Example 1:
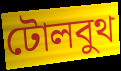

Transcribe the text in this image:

টোলবুথ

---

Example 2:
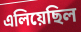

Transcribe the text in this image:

এলিয়েছিল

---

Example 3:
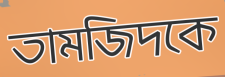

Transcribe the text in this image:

তামজিদকে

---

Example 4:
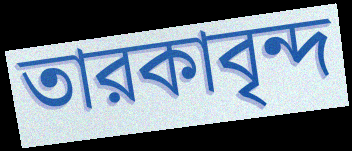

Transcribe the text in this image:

তারকাবৃন্দ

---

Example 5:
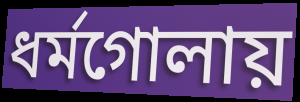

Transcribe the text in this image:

ধর্মগোলায়